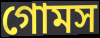
গোমস